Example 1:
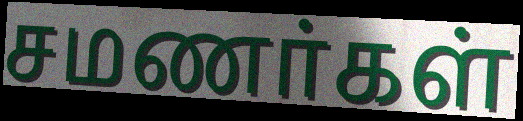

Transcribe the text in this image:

சமணர்கள்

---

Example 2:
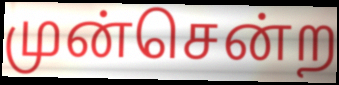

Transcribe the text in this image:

முன்சென்ற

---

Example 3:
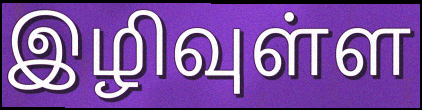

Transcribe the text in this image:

இழிவுள்ள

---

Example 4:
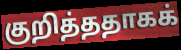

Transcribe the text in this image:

குறித்ததாகக்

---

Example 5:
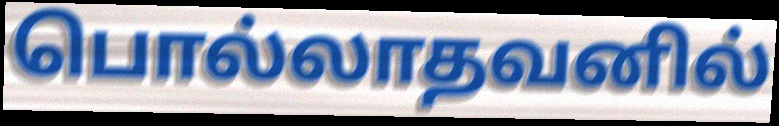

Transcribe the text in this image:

பொல்லாதவனில்